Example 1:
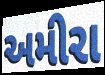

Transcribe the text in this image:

અમીરા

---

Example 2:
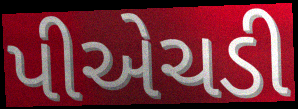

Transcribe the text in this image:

પીએચડી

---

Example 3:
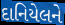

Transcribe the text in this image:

દાનિયેલને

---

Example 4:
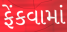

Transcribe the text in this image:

ફેંકવામાં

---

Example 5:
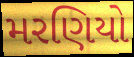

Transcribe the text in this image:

મરણિયો